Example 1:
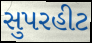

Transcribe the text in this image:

સુપરહીટ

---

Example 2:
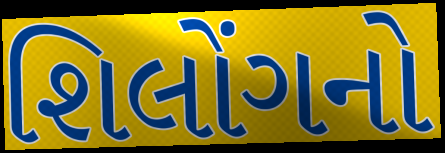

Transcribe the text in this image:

શિલોંગનો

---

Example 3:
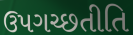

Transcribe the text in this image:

ઉપગચ્છતીતિ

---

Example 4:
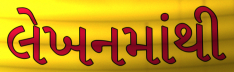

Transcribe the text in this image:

લેખનમાંથી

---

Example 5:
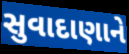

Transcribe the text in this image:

સુવાદાણાને